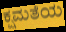
ಕ್ಷಮತೆಯ